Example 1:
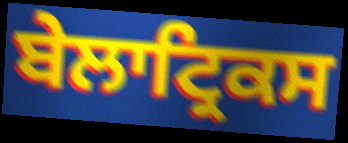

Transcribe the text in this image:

ਬੇਲਾਟ੍ਰਿਕਸ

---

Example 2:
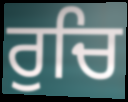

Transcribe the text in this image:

ਰੁਚਿ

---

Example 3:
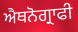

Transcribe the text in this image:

ਐਥਨੋਗ੍ਰਾਫੀ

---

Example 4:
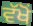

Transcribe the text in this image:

ਵੱਖੋਂ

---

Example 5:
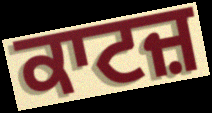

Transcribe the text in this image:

ਕਾਟਜ਼